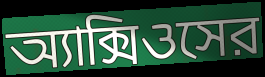
অ্যাক্সিওসের